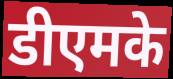
डीएमके